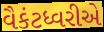
વૈકંટધ્વરીએ